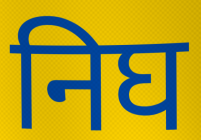
निघ